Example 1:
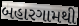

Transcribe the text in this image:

બહારગામથી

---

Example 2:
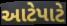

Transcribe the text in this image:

આટેપાટે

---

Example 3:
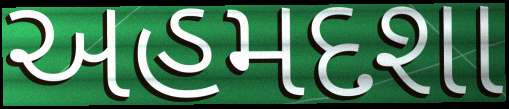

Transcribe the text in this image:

અહમદશા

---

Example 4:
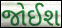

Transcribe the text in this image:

જોઈશ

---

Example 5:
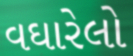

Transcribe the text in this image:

વઘારેલો